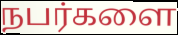
நபர்களை